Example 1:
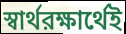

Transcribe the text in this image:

স্বার্থরক্ষার্থেই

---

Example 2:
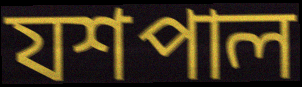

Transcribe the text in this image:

যশপাল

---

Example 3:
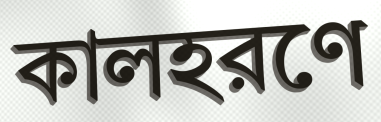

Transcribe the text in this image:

কালহরণে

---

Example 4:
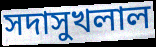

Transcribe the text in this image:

সদাসুখলাল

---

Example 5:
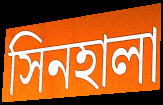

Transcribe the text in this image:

সিনহালা